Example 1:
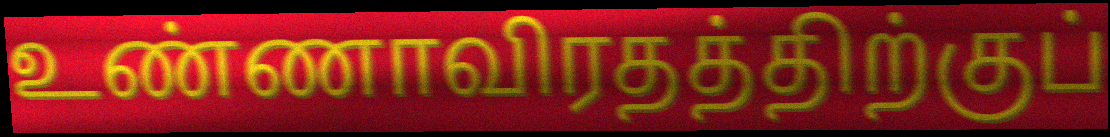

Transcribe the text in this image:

உண்ணாவிரதத்திற்குப்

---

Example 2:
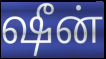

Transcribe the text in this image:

ஷீன்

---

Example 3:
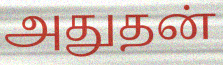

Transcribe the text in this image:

அதுதன்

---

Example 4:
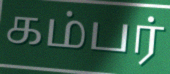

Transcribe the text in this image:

கம்பர்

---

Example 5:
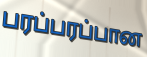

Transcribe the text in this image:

பரப்பரப்பான